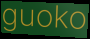
guoko